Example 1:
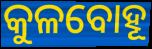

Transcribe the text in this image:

କୁଳବୋହୂ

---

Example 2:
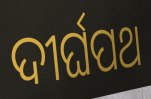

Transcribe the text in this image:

ଦୀର୍ଘପଥ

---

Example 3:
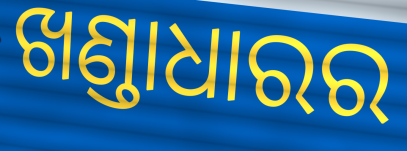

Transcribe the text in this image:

ଖଣ୍ଡାଧାରର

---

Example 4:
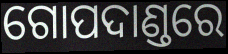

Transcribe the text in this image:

ଗୋପଦାଣ୍ଡରେ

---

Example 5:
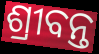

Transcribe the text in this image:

ଶ୍ରୀବନ୍ତ